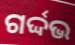
ଗର୍ଦ୍ଦଭ